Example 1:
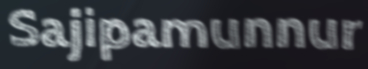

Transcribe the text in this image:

Sajipamunnur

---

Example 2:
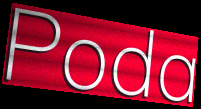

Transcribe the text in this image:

Poda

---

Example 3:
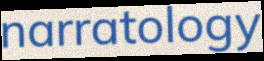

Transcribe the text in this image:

narratology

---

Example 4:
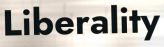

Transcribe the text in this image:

Liberality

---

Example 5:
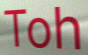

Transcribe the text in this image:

Toh